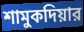
শামুকদিয়ার